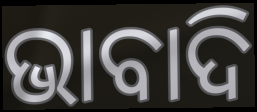
ଭାବାଦି